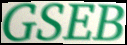
GSEB